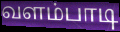
வளம்பாடி